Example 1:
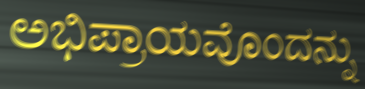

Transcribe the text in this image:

ಅಭಿಪ್ರಾಯವೊಂದನ್ನು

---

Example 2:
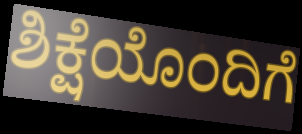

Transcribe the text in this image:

ಶಿಕ್ಷೆಯೊಂದಿಗೆ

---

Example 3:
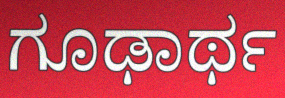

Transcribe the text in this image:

ಗೂಢಾರ್ಥ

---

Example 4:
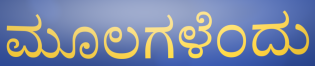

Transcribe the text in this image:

ಮೂಲಗಳೆಂದು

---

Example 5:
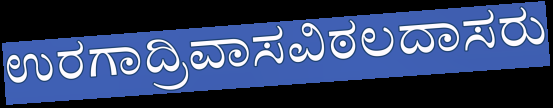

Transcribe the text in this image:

ಉರಗಾದ್ರಿವಾಸವಿಠಲದಾಸರು